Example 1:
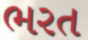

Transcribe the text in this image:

ભરત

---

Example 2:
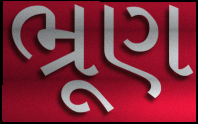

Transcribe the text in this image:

ભ્રૂણ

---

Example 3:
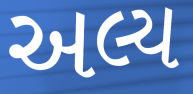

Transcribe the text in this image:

અલ્ય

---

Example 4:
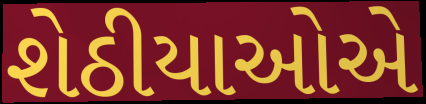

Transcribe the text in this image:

શેઠીયાઓએ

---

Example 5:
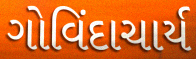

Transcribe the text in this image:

ગોવિંદાચાર્ય